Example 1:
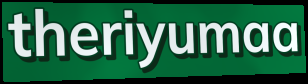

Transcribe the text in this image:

theriyumaa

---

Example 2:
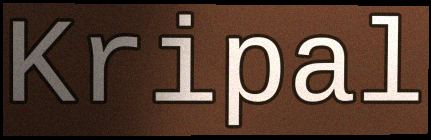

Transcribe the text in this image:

Kripal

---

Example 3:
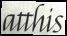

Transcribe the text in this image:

atthis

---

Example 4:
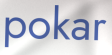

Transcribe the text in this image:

pokar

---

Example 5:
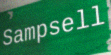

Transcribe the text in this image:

Sampsell